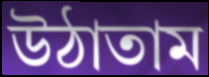
উঠাতাম